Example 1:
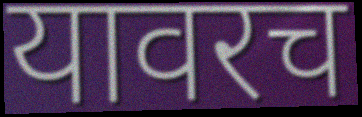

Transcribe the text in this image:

यावरच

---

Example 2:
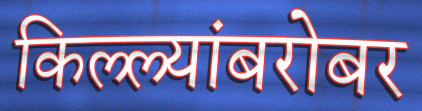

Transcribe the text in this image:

किल्ल्यांबरोबर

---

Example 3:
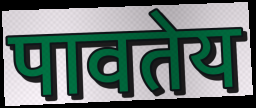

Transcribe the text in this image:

पावतेय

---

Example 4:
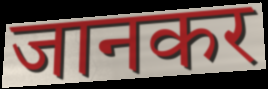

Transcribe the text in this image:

जानकर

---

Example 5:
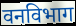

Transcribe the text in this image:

वनविभाग